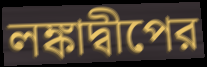
লঙ্কাদ্বীপের